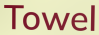
Towel